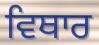
ਵਿਥਾਰ